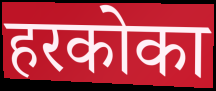
हरकोका